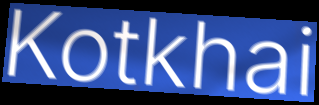
Kotkhai